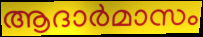
ആദാർമാസം